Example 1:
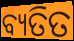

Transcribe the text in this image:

ବ୍ୟତିତ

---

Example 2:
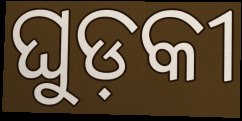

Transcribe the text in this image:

ଘୁଡ଼କୀ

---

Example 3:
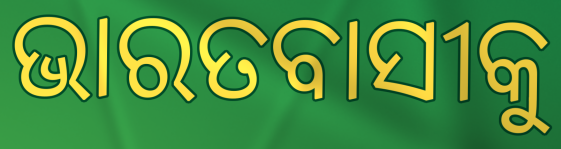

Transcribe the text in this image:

ଭାରତବାସୀକୁ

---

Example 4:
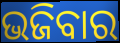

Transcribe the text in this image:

ଭଜିବାର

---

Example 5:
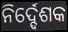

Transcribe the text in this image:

ନିର୍ଦ୍ଦେଶକ